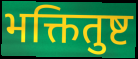
भक्तितुष्ट